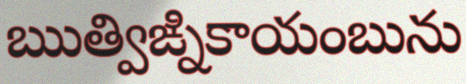
ఋత్విఙ్నికాయంబును